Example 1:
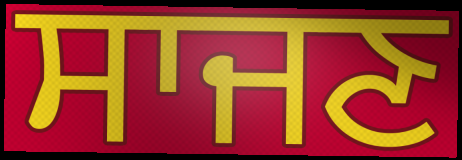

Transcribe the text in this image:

ਸਾਜਣ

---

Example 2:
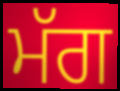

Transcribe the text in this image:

ਮੱਗ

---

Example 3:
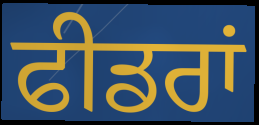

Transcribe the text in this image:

ਫੀਡਰਾਂ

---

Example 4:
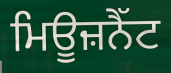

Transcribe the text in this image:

ਮਿਊਜ਼ਨੈੱਟ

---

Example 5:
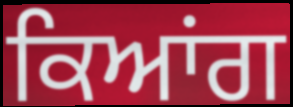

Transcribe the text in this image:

ਕਿਆਂਗ